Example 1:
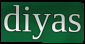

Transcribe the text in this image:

diyas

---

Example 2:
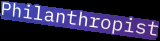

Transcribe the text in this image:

Philanthropist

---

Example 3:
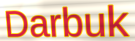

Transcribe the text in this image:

Darbuk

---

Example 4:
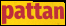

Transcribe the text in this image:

pattan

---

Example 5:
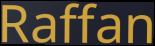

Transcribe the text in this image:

Raffan